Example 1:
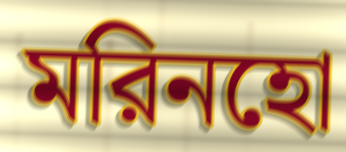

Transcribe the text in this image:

মরিনহো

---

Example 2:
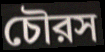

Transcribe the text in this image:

চৌরস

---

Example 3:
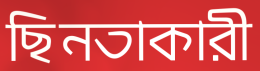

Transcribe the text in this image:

ছিনতাকারী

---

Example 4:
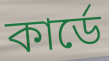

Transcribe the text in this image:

কার্ডে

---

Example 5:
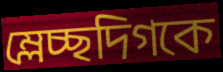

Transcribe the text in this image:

ম্লেচ্ছদিগকে